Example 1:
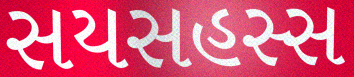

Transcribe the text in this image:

સયસહસ્સ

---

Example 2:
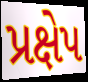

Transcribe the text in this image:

પ્રક્ષેપ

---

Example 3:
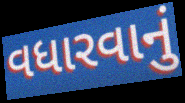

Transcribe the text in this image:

વધારવાનું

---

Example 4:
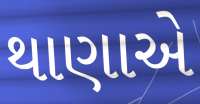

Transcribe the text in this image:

થાણાએ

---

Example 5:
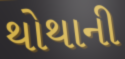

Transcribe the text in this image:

થોથાની